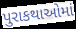
પુરાકથાઓમાં